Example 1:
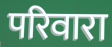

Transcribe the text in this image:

परिवारा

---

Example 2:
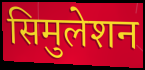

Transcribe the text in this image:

सिमुलेशन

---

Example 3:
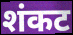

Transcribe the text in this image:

शंकट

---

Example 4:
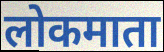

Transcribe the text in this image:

लोकमाता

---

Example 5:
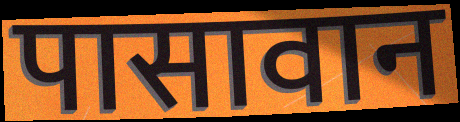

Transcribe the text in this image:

पासावान